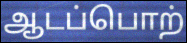
ஆடப்பொற்